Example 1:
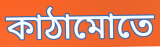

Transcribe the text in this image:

কাঠামোতে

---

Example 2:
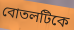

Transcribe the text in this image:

বোতলটিকে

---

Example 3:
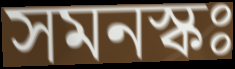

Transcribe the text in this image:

সমনস্কঃ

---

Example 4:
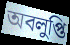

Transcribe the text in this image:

অবলুপ্তি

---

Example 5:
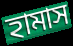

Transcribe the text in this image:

হামাস